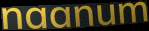
naanum